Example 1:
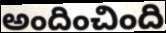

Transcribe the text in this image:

అందించింది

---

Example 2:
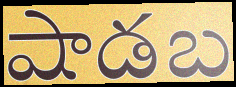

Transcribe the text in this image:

షాడబ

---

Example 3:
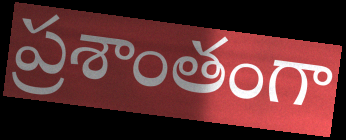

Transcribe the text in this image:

ప్రశాంతంగా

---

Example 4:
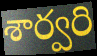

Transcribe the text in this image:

శార్వరి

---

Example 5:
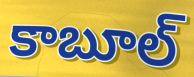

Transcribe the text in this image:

కాబూల్